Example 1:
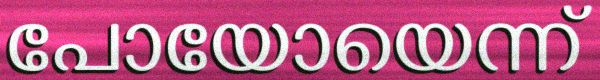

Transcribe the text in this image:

പോയോയെന്ന്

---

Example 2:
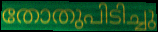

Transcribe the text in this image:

തോതുപിടിച്ചു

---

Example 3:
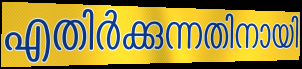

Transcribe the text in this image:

എതിർക്കുന്നതിനായി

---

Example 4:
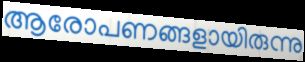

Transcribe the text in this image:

ആരോപണങ്ങളായിരുന്നു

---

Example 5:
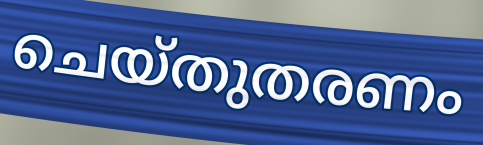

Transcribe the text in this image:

ചെയ്തുതരണം